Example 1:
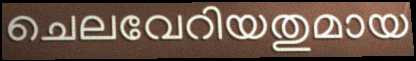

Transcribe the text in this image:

ചെലവേറിയതുമായ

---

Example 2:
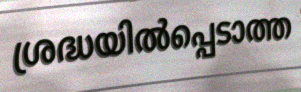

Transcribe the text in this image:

ശ്രദ്ധയിൽപ്പെടാത്ത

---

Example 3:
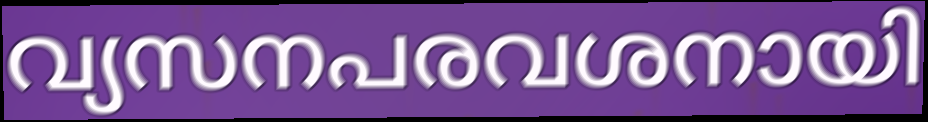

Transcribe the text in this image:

വ്യസനപരവശനായി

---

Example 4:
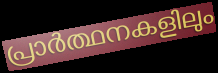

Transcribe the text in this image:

പ്രാർത്ഥനകളിലും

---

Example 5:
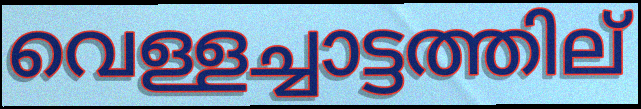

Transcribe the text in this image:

വെള്ളച്ചാട്ടത്തില്